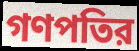
গণপতির